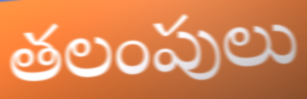
తలంపులు